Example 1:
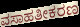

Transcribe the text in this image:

ವಸಾಹತೀಕರಣ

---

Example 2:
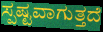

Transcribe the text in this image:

ಸ್ಪಷ್ಟವಾಗುತ್ತದೆ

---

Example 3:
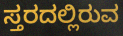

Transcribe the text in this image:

ಸ್ತರದಲ್ಲಿರುವ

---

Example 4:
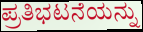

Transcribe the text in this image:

ಪ್ರತಿಭಟನೆಯನ್ನು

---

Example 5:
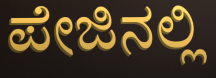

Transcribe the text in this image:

ಪೇಜಿನಲ್ಲಿ